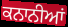
ਕਨਾਨੀਆਂ